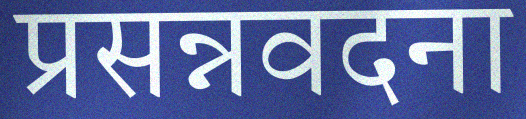
प्रसन्नवदना